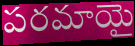
పరమాయై